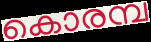
കൊരമ്പ